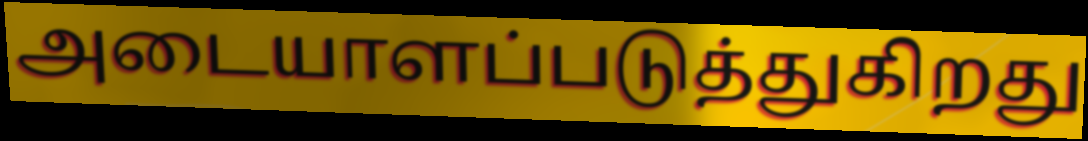
அடையாளப்படுத்துகிறது